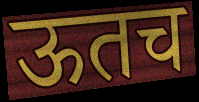
ऊतच